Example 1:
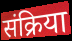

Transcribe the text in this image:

संक्रिया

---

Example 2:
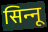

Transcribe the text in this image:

सिन्नू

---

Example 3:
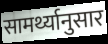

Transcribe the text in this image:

सामर्थ्यानुसार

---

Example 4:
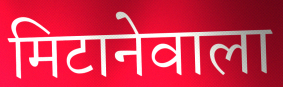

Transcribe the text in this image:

मिटानेवाला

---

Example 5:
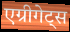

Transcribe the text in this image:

एग्रीगेट्स